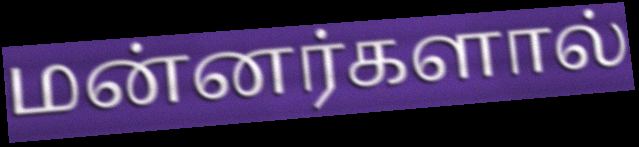
மன்னர்களால்